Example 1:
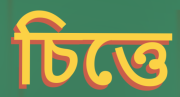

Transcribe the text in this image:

চিত্তে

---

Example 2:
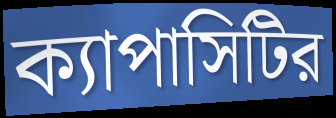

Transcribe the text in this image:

ক্যাপাসিটির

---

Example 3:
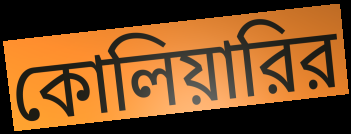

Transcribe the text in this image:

কোলিয়ারির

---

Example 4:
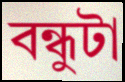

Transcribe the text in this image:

বন্ধুটা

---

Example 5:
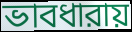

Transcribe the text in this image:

ভাবধারায়